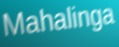
Mahalinga